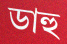
ডাহু